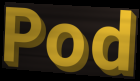
Pod